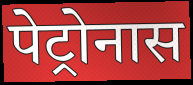
पेट्रोनास